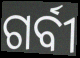
ଗର୍ବୀ